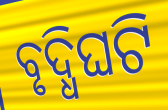
ବୃଦ୍ଧିଘଟି